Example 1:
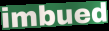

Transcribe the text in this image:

imbued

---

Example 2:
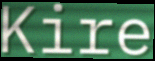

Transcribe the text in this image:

Kire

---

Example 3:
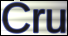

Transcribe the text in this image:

Cru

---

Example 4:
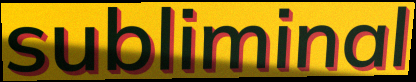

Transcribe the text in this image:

subliminal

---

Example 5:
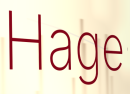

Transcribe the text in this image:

Hage